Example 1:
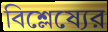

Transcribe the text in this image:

বিশ্লেষ্যের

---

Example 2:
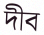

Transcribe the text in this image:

দীব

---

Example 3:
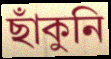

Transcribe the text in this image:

ছাঁকুনি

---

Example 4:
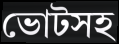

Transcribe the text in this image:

ভোটসহ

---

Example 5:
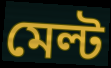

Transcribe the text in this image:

মেল্ট